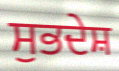
ਸੁਭਦੇਸ਼